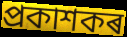
প্ৰকাশকৰ